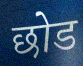
छोड